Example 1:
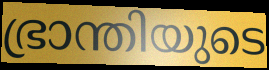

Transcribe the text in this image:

ഭ്രാന്തിയുടെ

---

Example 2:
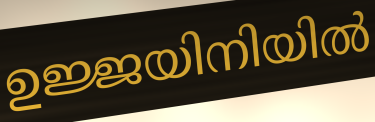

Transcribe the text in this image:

ഉജ്ജയിനിയിൽ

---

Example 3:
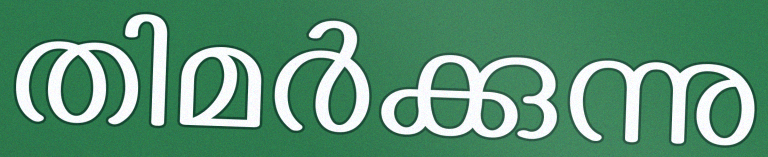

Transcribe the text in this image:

തിമർക്കുന്നു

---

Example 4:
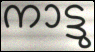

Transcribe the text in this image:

നാട്ടു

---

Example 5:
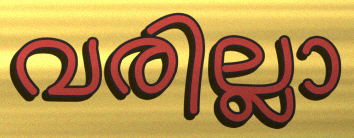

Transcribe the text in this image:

വരില്ലാ